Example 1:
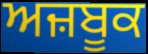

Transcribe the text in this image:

ਅਜ਼ਬੂਕ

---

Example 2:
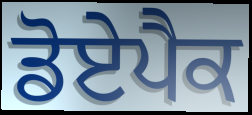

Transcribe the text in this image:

ਡੋਏਪੈਕ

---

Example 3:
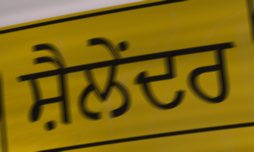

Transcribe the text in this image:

ਸ਼ੈਲੇਂਦਰ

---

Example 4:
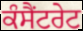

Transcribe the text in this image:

ਕੰਸੈਂਟਰੇਟ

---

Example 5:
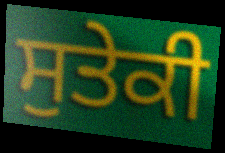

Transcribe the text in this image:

ਸੁਤੇਕੀ